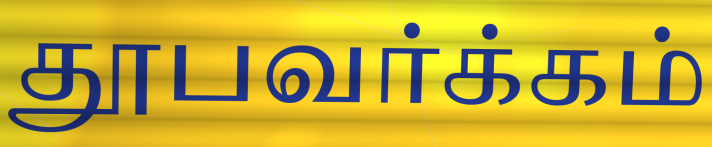
தூபவர்க்கம்